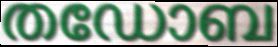
തഡോബ